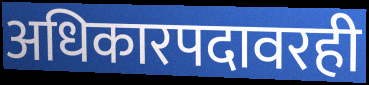
अधिकारपदावरही